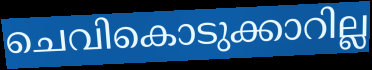
ചെവികൊടുക്കാറില്ല